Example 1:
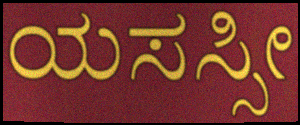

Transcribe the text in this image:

ಯಸಸ್ಸೀ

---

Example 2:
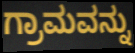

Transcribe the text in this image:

ಗ್ರಾಮವನ್ನು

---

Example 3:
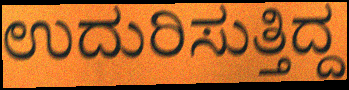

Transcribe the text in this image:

ಉದುರಿಸುತ್ತಿದ್ದ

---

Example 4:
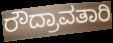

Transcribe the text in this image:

ರೌದ್ರಾವತಾರಿ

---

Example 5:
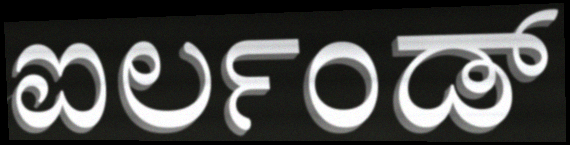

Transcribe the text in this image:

ಐರ್ಲಂಡ್